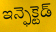
ఇన్ఫెక్టెడ్